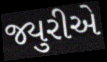
જ્યુરીએ